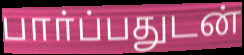
பார்ப்பதுடன்